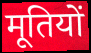
मूतियों